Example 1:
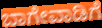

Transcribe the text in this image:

ಬಾಗೇವಾಡಿಗೆ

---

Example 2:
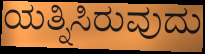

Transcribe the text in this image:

ಯತ್ನಿಸಿರುವುದು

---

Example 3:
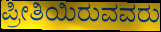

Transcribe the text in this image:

ಪ್ರೀತಿಯಿರುವವರು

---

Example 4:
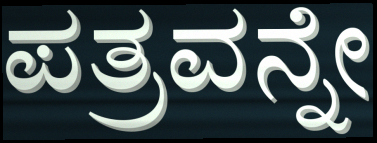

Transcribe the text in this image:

ಪತ್ರವನ್ನೇ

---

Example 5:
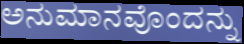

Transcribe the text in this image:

ಅನುಮಾನವೊಂದನ್ನು